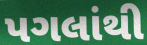
પગલાંથી